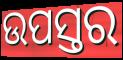
ଉପସ୍ତର